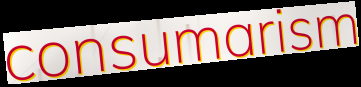
consumarism